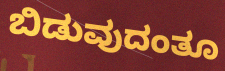
ಬಿಡುವುದಂತೂ